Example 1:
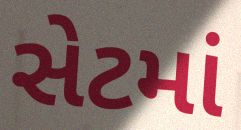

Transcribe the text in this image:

સેટમાં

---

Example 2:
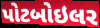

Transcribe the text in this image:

પોટબોઇલર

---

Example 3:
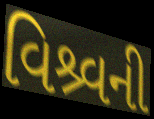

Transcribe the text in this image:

વિશ્ર્વની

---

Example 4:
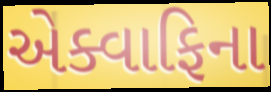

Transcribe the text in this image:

એક્વાફિના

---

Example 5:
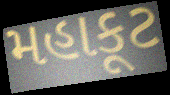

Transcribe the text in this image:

મહાકૂટ